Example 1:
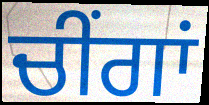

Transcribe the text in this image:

ਚੀਂਗਾਂ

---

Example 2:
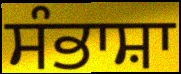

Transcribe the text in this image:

ਸੰਭਾਸ਼ਾ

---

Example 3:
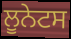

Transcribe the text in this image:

ਲੂਨੇਟਸ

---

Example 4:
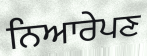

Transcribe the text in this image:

ਨਿਆਰੇਪਣ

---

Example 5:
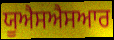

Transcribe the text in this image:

ਯੂਐਸਐਸਆਰ